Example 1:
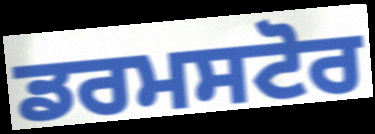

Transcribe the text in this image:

ਡਰਮਸਟੋਰ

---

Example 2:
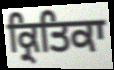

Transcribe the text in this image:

ਕ੍ਰਿਤਿਕਾ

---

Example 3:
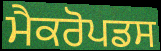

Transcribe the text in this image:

ਮੈਕਰੋਪਡਸ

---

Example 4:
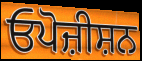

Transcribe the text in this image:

ਓਪੋਜ਼ੀਸ਼ਨ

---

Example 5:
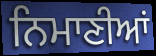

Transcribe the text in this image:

ਨਿਮਾਣੀਆਂ